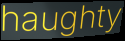
haughty